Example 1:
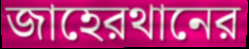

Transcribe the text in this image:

জাহেরথানের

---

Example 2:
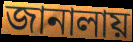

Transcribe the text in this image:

জানালায়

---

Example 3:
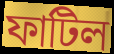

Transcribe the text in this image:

ফাটিল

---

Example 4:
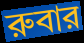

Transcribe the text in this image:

রুবার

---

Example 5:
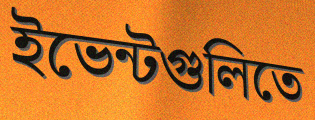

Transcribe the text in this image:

ইভেন্টগুলিতে